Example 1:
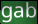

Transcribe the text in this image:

gab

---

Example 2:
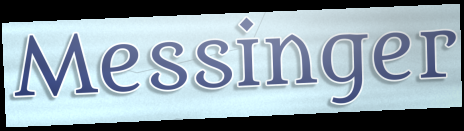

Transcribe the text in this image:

Messinger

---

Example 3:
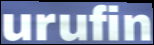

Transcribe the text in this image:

urufin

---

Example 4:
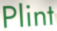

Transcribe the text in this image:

Plint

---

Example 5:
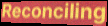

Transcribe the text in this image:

Reconciling